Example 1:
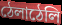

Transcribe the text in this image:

ঠেলাঠেলি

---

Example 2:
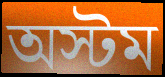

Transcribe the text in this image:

অস্টম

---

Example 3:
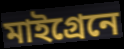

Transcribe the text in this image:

মাইগ্রেনে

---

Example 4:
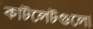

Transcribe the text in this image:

কাটলেটগুলো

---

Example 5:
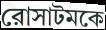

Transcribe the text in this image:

রোসাটমকে